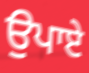
ਉਪਾਏ